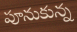
పూనుకున్న